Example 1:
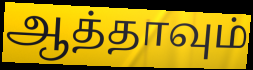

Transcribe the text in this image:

ஆத்தாவும்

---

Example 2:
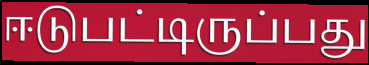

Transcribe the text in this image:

ஈடுபட்டிருப்பது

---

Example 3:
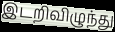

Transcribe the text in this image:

இடறிவிழுந்து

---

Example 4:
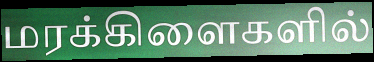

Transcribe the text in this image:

மரக்கிளைகளில்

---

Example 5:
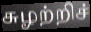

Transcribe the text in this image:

சுழற்றிச்